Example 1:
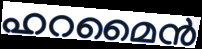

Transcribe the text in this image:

ഹറമൈൻ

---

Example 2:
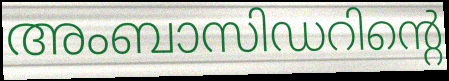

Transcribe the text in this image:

അംബാസിഡറിന്റെ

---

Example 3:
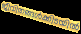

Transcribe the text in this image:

ജീവിതങ്ങൾക്കിടയിൽ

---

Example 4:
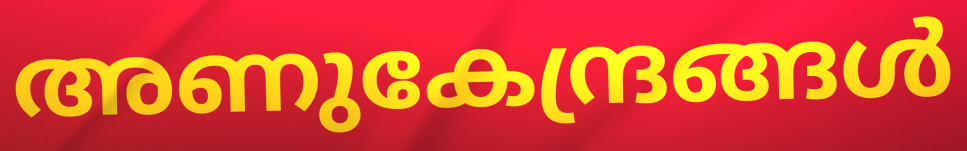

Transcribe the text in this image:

അണുകേന്ദ്രങ്ങൾ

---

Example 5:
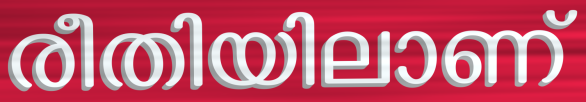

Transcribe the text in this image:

രീതിയിലാണ്